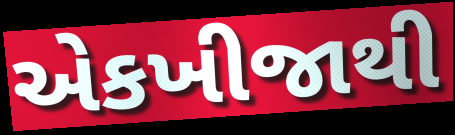
એકખીજાથી